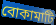
বোকামাটি